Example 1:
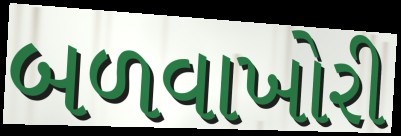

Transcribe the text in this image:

બળવાખોરી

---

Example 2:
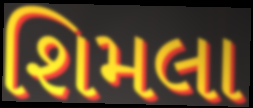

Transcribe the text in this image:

શિમલા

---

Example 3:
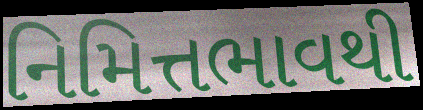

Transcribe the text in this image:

નિમિત્તભાવથી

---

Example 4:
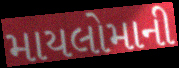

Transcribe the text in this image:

માયલોમાની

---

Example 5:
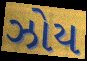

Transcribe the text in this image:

ઝોય